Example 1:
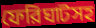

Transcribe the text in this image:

ফেরিঘাটসহ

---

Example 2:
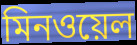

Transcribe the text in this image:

মিনওয়েল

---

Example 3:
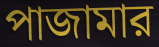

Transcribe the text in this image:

পাজামার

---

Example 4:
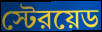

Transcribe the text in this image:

স্টেরয়েড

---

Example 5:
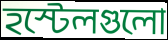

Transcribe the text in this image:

হস্টেলগুলো